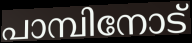
പാമ്പിനോട്